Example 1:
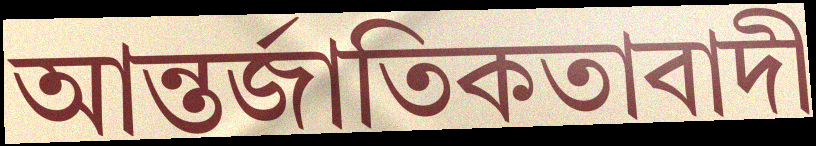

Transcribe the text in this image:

আন্তর্জাতিকতাবাদী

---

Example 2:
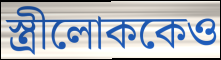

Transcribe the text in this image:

স্ত্রীলোককেও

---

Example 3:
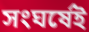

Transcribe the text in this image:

সংঘর্ষেই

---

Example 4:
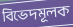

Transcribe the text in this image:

বিভেদমূলক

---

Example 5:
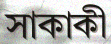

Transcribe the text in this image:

সাকাকী